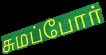
சுமப்போர்